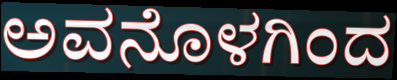
ಅವನೊಳಗಿಂದ